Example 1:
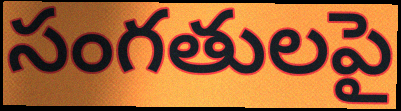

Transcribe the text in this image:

సంగతులపై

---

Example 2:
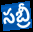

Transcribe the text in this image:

సబ్రీ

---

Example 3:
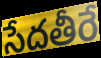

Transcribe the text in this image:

సేదతీరే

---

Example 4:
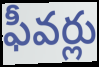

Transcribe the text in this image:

ఫీవర్లు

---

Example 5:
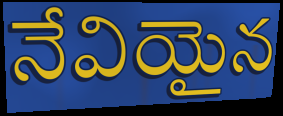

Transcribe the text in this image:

నేవియైన